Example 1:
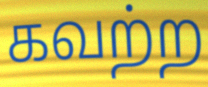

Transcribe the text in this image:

கவற்ற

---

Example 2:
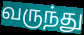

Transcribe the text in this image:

வருந்து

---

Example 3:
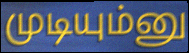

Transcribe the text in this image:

முடியும்னு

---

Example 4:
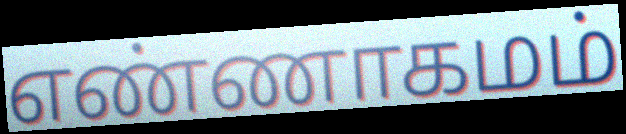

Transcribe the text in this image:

எண்ணாகமம்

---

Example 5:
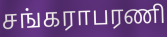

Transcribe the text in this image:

சங்கராபரணி